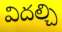
విదల్చి